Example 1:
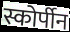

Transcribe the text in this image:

स्कोर्पीन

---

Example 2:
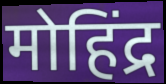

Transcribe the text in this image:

मोहिंद्र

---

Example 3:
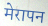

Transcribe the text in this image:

मेरापन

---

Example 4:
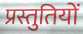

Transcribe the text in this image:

प्रस्तुतियों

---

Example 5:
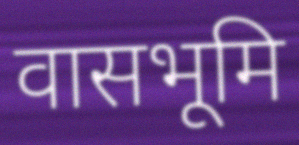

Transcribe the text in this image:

वासभूमि